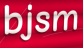
bjsm